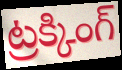
ట్రక్కింగ్